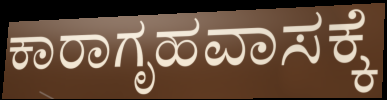
ಕಾರಾಗೃಹವಾಸಕ್ಕೆ